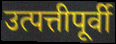
उत्पत्तीपूर्वी